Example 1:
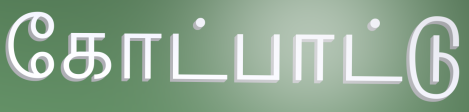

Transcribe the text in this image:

கோட்பாட்டு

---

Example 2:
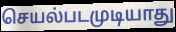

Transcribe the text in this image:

செயல்படமுடியாது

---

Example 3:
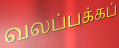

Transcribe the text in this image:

வலப்பக்கப்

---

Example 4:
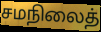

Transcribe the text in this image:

சமநிலைத்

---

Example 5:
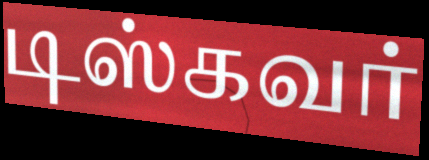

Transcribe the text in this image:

டிஸ்கவர்